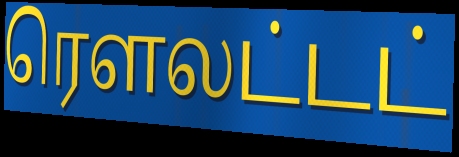
ரௌலட்டட்